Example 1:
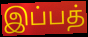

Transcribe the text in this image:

இப்பத்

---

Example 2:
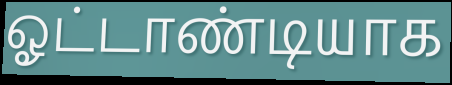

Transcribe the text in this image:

ஓட்டாண்டியாக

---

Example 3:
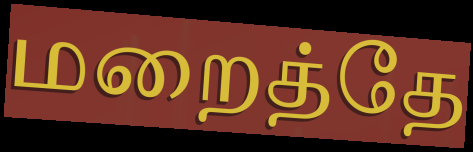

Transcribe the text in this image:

மறைத்தே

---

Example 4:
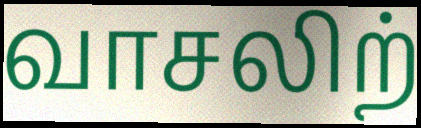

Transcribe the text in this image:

வாசலிற்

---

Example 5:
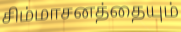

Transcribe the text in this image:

சிம்மாசனத்தையும்